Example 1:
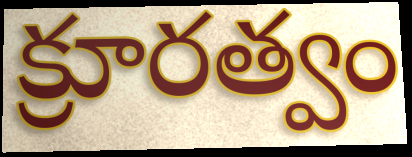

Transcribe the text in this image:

క్రూరత్వం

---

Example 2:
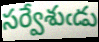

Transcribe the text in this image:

సర్వేశుఁడు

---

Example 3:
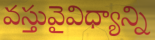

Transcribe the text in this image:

వస్తువైవిధ్యాన్ని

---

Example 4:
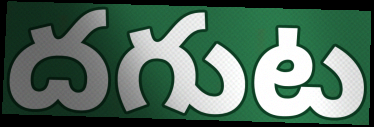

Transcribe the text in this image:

దగుట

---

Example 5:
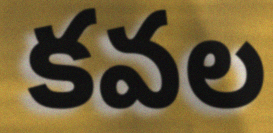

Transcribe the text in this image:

కవల